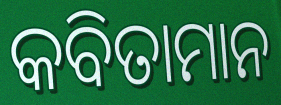
କବିତାମାନ